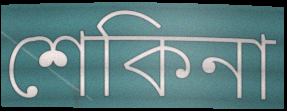
শেকিনা